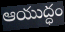
ఆయుద్ధం